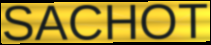
SACHOT